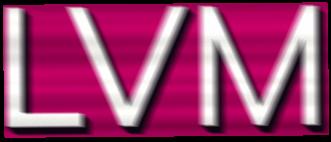
LVM